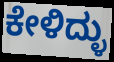
ಕೇಳಿದ್ಳು